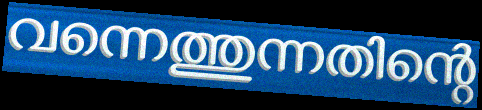
വന്നെത്തുന്നതിന്റെ